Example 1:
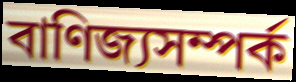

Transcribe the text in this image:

বাণিজ্যসম্পর্ক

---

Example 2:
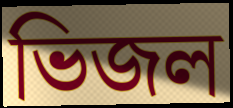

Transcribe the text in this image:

ভিজল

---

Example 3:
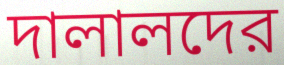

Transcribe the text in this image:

দালালদের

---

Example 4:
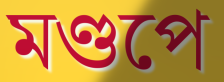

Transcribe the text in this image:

মণ্ডপে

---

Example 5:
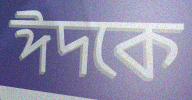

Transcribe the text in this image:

ঈদকে